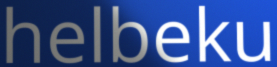
helbeku